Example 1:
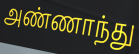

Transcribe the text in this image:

அண்ணாந்து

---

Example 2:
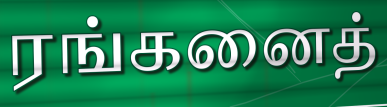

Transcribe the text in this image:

ரங்கனைத்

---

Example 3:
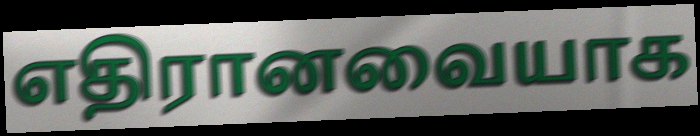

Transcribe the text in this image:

எதிரானவையாக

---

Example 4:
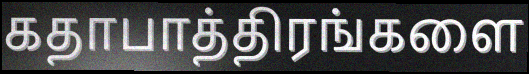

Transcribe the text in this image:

கதாபாத்திரங்களை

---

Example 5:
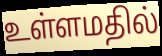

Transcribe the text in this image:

உள்ளமதில்